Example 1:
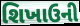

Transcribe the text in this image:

શિખાઉની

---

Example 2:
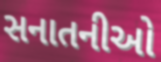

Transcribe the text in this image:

સનાતનીઓ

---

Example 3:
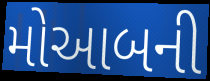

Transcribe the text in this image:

મોઆબની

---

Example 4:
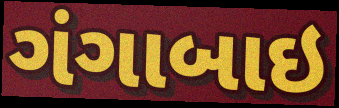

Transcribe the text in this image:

ગંગાબાઇ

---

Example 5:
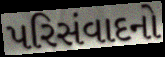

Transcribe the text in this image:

પરિસંવાદનો